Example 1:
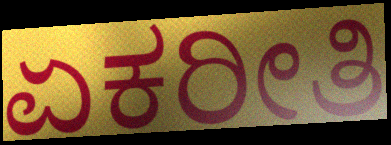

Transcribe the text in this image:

ಏಕರೀತಿ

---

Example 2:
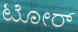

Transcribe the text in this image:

ಟೋರ್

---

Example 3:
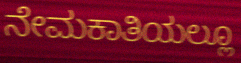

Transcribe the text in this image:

ನೇಮಕಾತಿಯಲ್ಲೂ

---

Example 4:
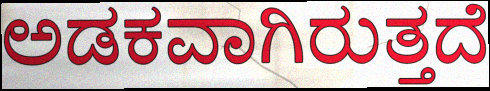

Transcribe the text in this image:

ಅಡಕವಾಗಿರುತ್ತದೆ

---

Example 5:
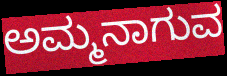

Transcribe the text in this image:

ಅಮ್ಮನಾಗುವ